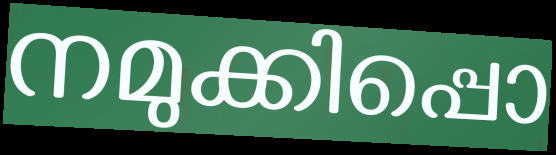
നമുക്കിപ്പൊ